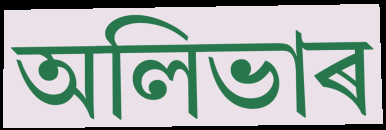
অলিভাৰ